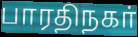
பாரதிநகர்